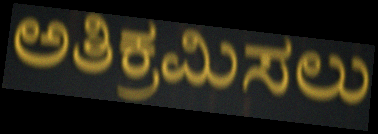
ಅತಿಕ್ರಮಿಸಲು